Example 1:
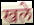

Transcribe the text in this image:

खले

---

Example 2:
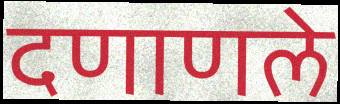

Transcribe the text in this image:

दणाणले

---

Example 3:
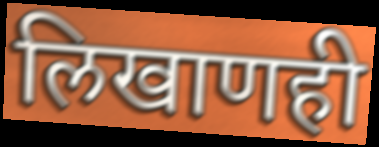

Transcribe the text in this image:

लिखाणही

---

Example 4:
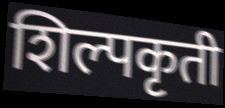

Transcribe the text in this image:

शिल्पकृती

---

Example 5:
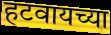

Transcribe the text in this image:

हटवायच्या